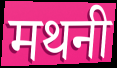
मथनी